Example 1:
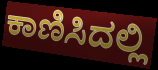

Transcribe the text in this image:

ಕಾಣಿಸಿದಲ್ಲಿ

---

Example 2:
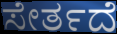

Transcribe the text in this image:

ಸೇರ್ತದೆ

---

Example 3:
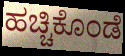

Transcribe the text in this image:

ಹಚ್ಚಿಕೊಂಡೆ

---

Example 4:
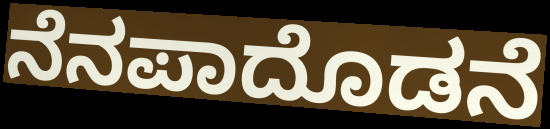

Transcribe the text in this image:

ನೆನಪಾದೊಡನೆ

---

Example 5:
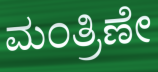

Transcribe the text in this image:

ಮಂತ್ರಿಣೇ